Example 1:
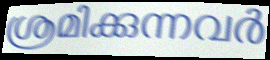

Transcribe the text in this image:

ശ്രമിക്കുന്നവർ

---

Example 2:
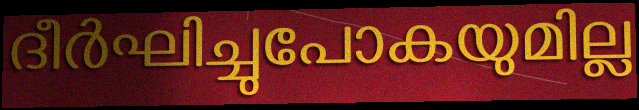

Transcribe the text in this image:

ദീർഘിച്ചുപോകയുമില്ല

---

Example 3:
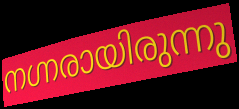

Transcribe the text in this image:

നഗ്നരായിരുന്നു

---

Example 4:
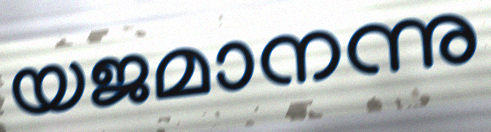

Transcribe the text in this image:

യജമാനന്നു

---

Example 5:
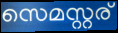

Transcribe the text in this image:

സെമസ്റ്റര്